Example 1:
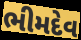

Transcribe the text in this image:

ભીમદેવ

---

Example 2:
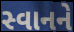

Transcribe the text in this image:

સ્વાનને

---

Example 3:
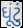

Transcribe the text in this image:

ઘૂંટું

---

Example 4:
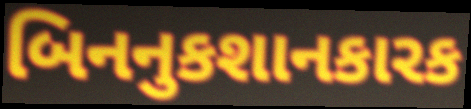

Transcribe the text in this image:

બિનનુકશાનકારક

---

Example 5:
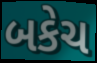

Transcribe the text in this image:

બકેચ